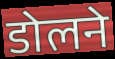
डोलने